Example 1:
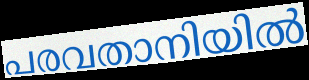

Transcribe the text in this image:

പരവതാനിയിൽ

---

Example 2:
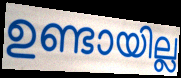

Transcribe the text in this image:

ഉണ്ടായില്ല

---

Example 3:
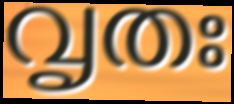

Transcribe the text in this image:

വൃതഃ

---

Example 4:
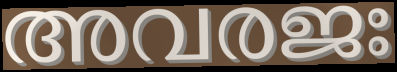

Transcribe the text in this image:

അവരജഃ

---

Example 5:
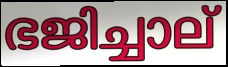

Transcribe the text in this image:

ഭജിച്ചാല്